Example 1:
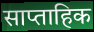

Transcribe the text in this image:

साप्ताहिक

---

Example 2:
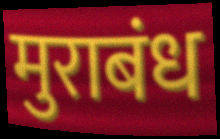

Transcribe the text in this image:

मुराबंध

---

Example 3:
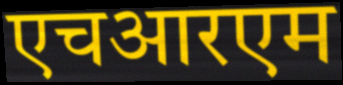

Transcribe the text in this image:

एचआरएम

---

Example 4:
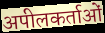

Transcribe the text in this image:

अपीलकर्ताओं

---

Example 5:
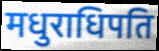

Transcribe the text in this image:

मधुराधिपति